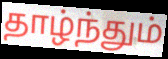
தாழ்ந்தும்